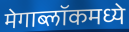
मेगाब्लॉकमध्ये